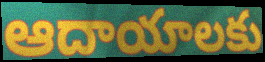
ఆదాయాలకు